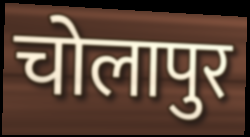
चोलापुर